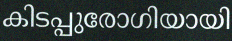
കിടപ്പുരോഗിയായി